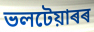
ভলটেয়াৰৰ